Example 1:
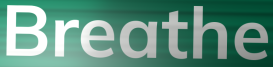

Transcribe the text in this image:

Breathe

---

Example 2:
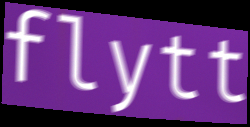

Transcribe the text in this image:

flytt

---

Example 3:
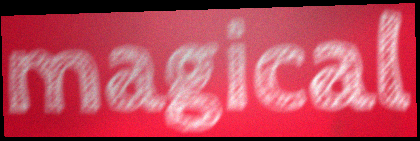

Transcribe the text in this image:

magical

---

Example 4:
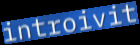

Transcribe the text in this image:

introivit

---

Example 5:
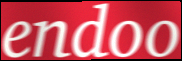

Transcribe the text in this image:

endoo